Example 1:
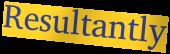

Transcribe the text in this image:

Resultantly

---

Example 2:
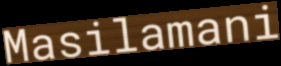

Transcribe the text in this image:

Masilamani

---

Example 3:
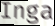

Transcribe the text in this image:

Inga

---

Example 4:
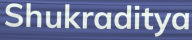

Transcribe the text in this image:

Shukraditya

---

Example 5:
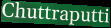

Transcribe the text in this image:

Chuttraputti